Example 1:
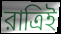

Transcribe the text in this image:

রাত্রিই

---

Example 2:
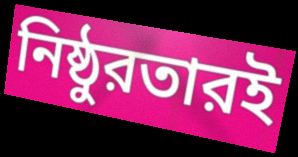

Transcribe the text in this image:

নিষ্ঠুরতারই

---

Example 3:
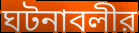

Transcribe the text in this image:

ঘটনাবলীর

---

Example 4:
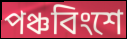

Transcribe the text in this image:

পঞ্চবিংশে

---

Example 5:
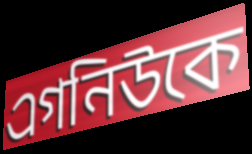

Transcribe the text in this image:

এগনিউকে